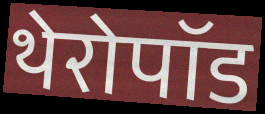
थेरोपॉड